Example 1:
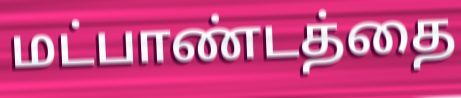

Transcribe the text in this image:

மட்பாண்டத்தை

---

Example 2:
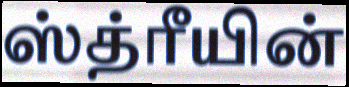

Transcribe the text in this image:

ஸ்த்ரீயின்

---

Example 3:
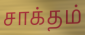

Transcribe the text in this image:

சாக்தம்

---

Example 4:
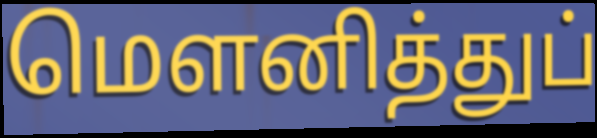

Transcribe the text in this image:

மெளனித்துப்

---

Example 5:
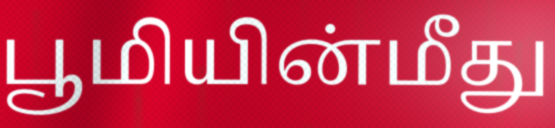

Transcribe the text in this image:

பூமியின்மீது